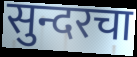
सुन्दरचा